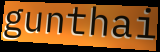
gunthai